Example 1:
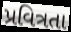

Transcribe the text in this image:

પ્રવિત્રતા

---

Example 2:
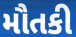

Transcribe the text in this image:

મૌતકી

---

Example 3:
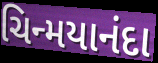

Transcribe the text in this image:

ચિન્મયાનંદા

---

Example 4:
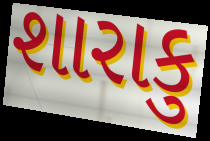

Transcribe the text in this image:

શારાકુ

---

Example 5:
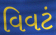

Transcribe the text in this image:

વિવટં